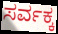
ಸರ್ವಕ್ಕ